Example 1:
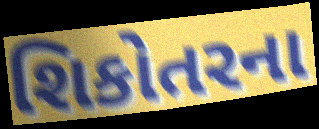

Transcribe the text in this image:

શિકોતરના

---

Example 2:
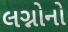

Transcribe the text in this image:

લગ્નોનો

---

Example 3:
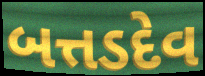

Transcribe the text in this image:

બત્તડદેવ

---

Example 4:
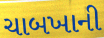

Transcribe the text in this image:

ચાબખાની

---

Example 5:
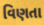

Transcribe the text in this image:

વિણતા